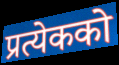
प्रत्येकको